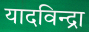
यादविन्द्रा